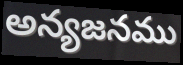
అన్యజనము